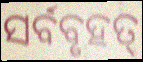
ସର୍ବବୃହତ୍